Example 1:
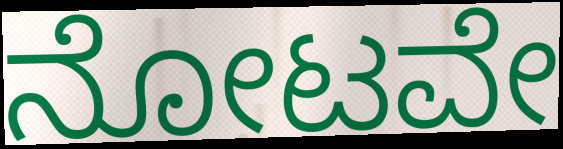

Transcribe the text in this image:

ನೋಟವೇ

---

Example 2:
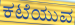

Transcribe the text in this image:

ಕಟೆಯುವ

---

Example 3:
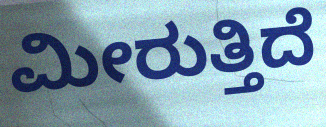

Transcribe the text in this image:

ಮೀರುತ್ತಿದೆ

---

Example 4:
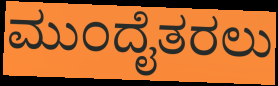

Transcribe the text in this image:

ಮುಂದೈತರಲು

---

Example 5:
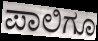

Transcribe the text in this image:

ಪಾಲಿಗೂ